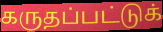
கருதப்பட்டுக்